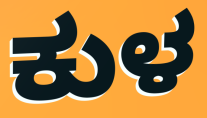
ಕುಳ